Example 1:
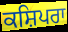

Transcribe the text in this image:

ਕਸ਼ਿਪਰਾ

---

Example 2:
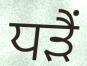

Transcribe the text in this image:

ਧੜੈਂ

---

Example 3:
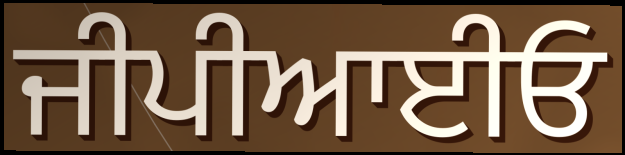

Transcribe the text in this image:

ਜੀਪੀਆਈਓ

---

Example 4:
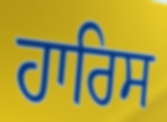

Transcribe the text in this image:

ਹਾਰਿਸ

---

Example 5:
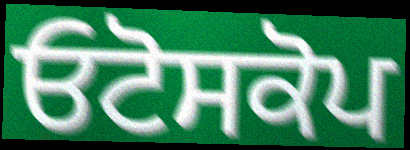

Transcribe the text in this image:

ਓਟੋਸਕੋਪ